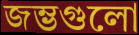
জম্ভগুলো